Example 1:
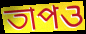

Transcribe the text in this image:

তাপও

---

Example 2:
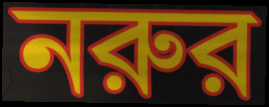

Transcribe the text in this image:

নরুর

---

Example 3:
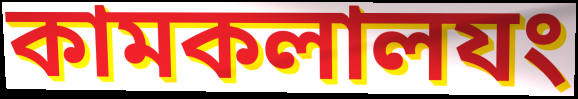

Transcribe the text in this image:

কামকলালযং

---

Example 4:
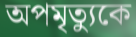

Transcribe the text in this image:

অপমৃত্যুকে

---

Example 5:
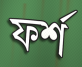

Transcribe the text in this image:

ফর্শ